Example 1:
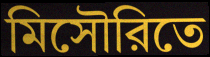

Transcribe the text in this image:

মিসৌরিতে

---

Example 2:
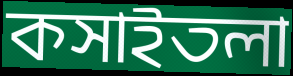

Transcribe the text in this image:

কসাইতলা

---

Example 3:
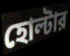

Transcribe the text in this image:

হোল্টার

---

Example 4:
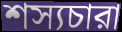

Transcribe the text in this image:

শস্যচারা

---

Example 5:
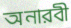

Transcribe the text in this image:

অনারবী